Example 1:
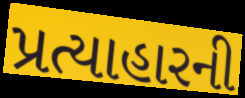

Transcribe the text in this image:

પ્રત્યાહારની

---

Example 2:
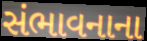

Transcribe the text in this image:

સંભાવનાના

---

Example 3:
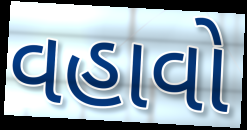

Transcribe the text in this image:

વહાવો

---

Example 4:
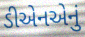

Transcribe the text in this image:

ડીએનએનું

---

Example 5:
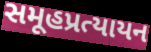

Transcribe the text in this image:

સમૂહપ્રત્યાયન